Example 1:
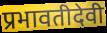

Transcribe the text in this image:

प्रभावतीदेवी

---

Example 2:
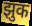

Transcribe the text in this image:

झुक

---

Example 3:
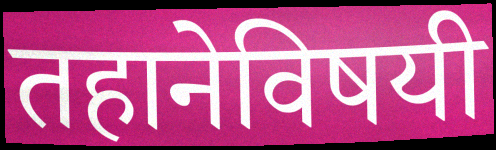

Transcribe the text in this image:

तहानेविषयी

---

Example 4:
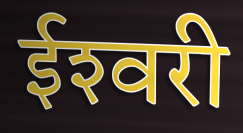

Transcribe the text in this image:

ईश्वरी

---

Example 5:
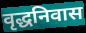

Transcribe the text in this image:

वृद्धनिवास